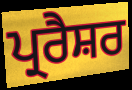
ਪ੍ਰਰੈਸ਼ਰ